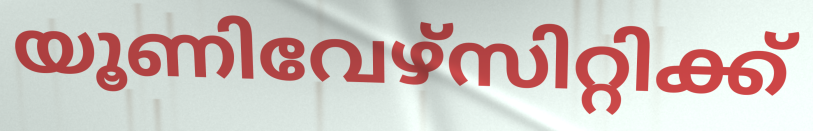
യൂണിവേഴ്സിറ്റിക്ക്